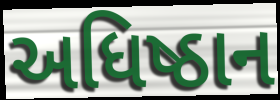
અધિષ્ઠાન